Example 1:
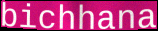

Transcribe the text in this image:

bichhana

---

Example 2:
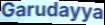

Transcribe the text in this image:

Garudayya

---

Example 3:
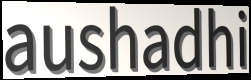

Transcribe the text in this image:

aushadhi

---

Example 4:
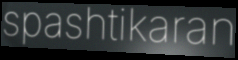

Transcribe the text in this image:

spashtikaran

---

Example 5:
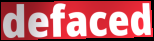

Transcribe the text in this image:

defaced